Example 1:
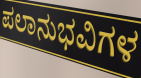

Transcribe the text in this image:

ಪಲಾನುಭವಿಗಳ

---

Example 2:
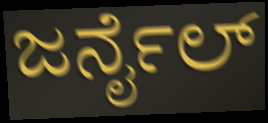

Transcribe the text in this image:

ಜರ್ನೈಲ್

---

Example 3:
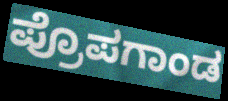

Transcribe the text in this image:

ಪ್ರೊಪಗಾಂಡ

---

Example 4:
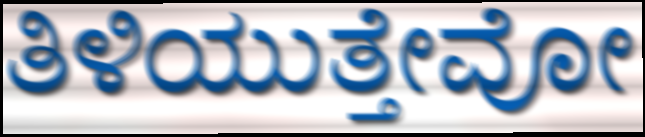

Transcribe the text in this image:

ತಿಳಿಯುತ್ತೇವೋ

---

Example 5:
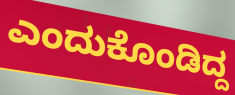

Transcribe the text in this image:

ಎಂದುಕೊಂಡಿದ್ದ